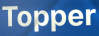
Topper